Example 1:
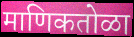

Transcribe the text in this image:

माणिकतोळा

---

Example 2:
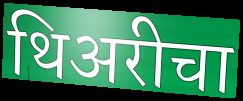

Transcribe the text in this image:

थिअरीचा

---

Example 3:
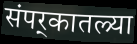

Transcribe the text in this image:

संपर्कातल्या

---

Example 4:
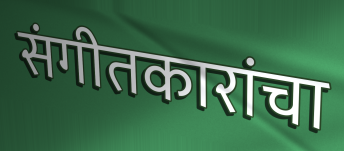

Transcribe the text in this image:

संगीतकारांचा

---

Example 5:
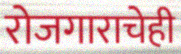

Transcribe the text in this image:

रोजगाराचेही